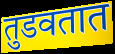
तुडवतात